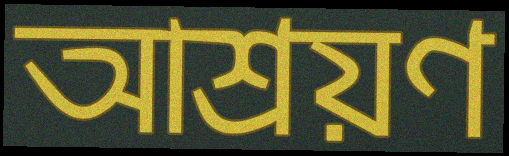
আশ্রয়ণ